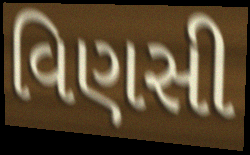
વિણસી